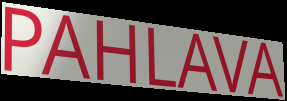
PAHLAVA